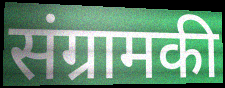
संग्रामकी